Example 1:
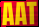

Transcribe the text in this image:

AAT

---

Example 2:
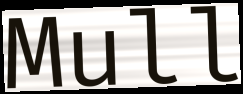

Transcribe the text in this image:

Mull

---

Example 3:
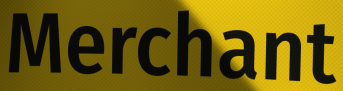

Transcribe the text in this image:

Merchant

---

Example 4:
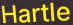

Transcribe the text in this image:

Hartle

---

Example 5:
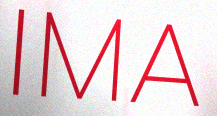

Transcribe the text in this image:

IMA